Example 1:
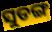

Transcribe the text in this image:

ସୁଡଙ୍ଗ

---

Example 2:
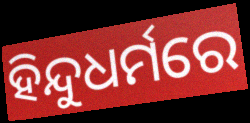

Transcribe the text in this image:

ହିନ୍ଦୁଧର୍ମରେ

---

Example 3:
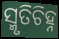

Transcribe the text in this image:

ସ୍ମୃତିଚିହ୍ନ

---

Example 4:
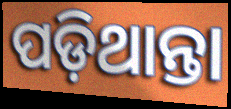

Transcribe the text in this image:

ପଡ଼ିଥାନ୍ତା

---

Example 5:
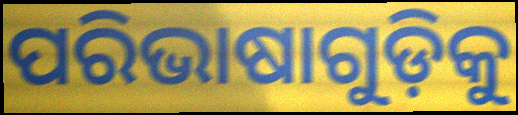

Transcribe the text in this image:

ପରିଭାଷାଗୁଡ଼ିକୁ